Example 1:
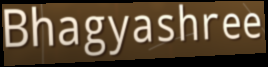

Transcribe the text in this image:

Bhagyashree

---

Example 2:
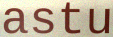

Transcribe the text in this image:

astu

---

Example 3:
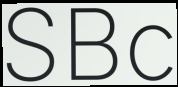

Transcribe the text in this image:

SBc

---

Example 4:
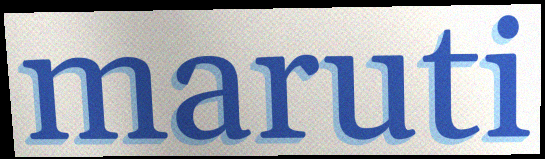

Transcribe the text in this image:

maruti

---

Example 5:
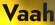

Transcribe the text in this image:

Vaah